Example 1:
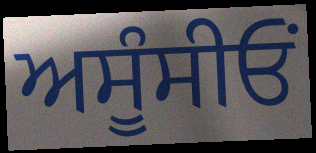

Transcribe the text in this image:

ਅਸੂੰਸੀਓਂ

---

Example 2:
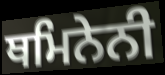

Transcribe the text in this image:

ਥਮਿਨੇਨੀ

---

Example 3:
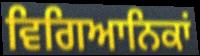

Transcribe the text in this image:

ਵਿਗਿਆਨਿਕਾਂ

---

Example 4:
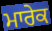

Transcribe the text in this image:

ਮਾਰੇਕ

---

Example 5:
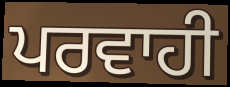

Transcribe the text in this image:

ਪਰਵਾਹੀ